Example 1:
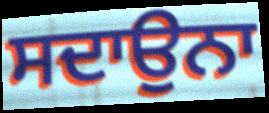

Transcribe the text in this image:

ਸਦਾਉਨਾ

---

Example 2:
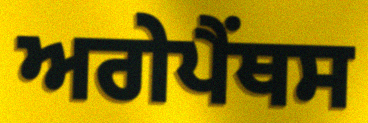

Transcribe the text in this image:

ਅਗੇਪੈਂਥਸ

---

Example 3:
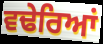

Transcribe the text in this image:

ਵਢੇਰਿਆਂ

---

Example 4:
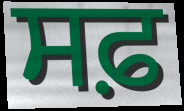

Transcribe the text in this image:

ਸਫ਼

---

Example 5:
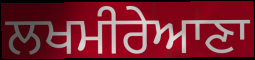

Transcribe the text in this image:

ਲਖਮੀਰੇਆਣਾ